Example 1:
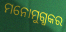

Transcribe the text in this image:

ମନୋମୁଗ୍ଧକର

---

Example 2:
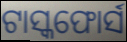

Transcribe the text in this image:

ଟାସ୍କଫୋର୍ସ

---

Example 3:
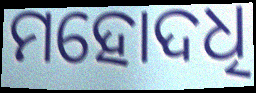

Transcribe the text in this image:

ମହୋଦଧି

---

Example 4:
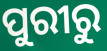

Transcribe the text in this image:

ପୁରୀରୁ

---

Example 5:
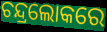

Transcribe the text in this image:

ଚନ୍ଦ୍ରଲୋକରେ